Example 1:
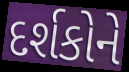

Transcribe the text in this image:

દર્શકોને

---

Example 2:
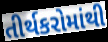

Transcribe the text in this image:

તીર્થકરોમાંથી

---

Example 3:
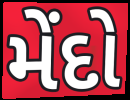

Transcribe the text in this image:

મેંદો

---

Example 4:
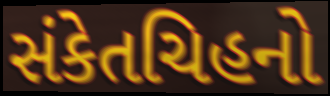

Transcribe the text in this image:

સંકેતચિહનો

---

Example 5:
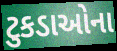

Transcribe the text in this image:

ટુકડાઓના